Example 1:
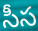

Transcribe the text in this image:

సీస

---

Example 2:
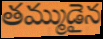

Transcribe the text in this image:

తమ్ముడైన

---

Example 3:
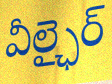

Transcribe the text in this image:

వీల్ఛైర్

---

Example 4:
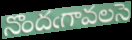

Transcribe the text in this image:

నొందఁగావలసె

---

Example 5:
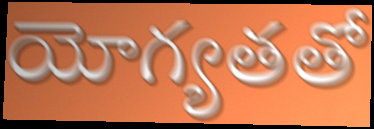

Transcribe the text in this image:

యోగ్యతతో